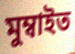
মুম্বাইত